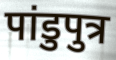
पांडुपुत्र